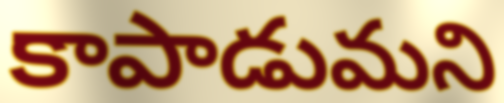
కాపాడుమని